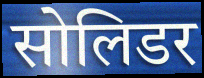
सोलिडर